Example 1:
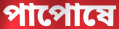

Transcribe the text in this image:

পাপোষে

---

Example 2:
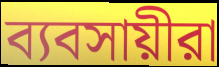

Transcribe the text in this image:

ব্যবসায়ীরা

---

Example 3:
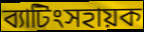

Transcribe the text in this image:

ব্যাটিংসহায়ক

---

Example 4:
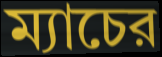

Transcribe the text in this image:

ম্যাচের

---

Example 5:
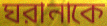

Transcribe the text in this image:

ঘরানাকে